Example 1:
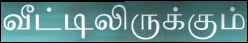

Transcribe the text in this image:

வீட்டிலிருக்கும்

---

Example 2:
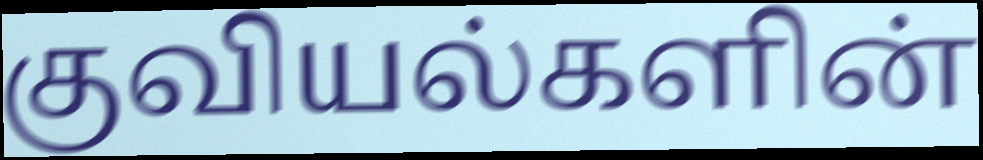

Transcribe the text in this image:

குவியல்களின்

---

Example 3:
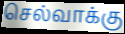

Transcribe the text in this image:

செல்வாக்கு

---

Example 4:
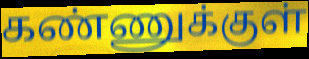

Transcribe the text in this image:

கண்ணுக்குள்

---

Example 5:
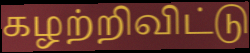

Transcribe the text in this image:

கழற்றிவிட்டு